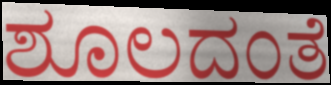
ಶೂಲದಂತೆ